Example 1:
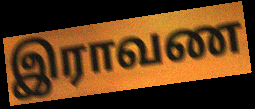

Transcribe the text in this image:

இராவண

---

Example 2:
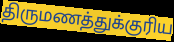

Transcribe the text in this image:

திருமணத்துக்குரிய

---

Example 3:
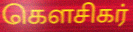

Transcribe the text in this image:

கௌசிகர்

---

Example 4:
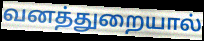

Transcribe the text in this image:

வனத்துறையால்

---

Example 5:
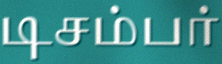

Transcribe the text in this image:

டிசம்பர்